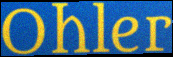
Ohler